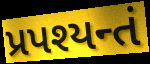
પ્રપશ્યન્તં